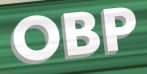
OBP